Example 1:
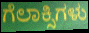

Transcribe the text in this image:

ಗೆಲಾಕ್ಸಿಗಳು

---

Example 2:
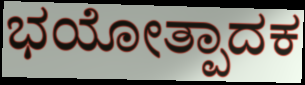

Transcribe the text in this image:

ಭಯೋತ್ಪಾದಕ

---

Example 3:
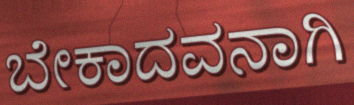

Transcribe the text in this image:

ಬೇಕಾದವನಾಗಿ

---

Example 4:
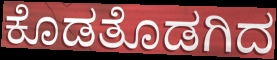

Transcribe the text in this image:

ಕೊಡತೊಡಗಿದ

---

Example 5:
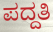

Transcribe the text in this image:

ಪದ್ದತಿ